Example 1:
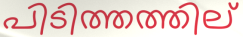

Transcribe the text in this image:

പിടിത്തത്തില്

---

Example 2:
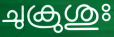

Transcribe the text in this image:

ചുക്രുശുഃ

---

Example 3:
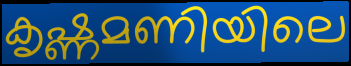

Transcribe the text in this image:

കൃഷ്ണമണിയിലെ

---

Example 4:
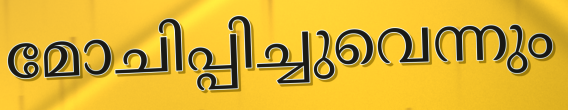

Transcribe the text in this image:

മോചിപ്പിച്ചുവെന്നും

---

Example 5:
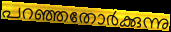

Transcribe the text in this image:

പറഞ്ഞതോർക്കുന്നു